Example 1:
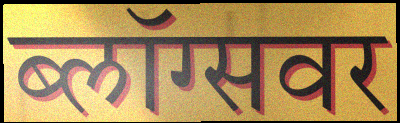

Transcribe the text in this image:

ब्लॉग्सवर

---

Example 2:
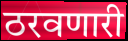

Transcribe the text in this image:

ठरवणारी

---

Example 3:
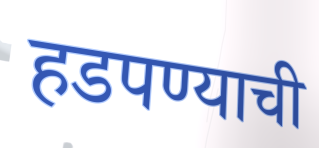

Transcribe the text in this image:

हडपण्याची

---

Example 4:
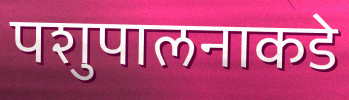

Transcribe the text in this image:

पशुपालनाकडे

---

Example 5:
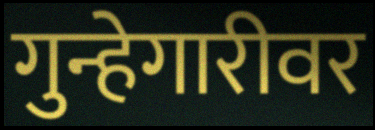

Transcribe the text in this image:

गुन्हेगारीवर